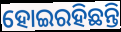
ହୋଇରହିଛନ୍ତି